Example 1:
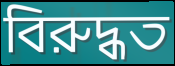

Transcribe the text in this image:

বিৰুদ্ধত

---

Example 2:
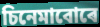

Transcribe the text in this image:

চিনেমাবোৰে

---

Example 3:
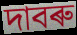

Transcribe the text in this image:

দাবৰু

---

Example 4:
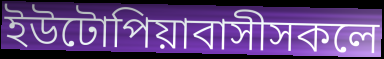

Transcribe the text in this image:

ইউটোপিয়াবাসীসকলে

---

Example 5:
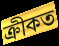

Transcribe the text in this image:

ক্ৰীকত